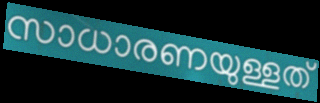
സാധാരണയുള്ളത്